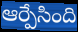
ఆర్పేసింది